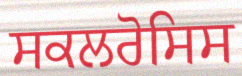
ਸਕਲਰੋਸਿਸ